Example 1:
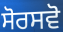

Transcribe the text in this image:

ਸੋਰਸਵੋ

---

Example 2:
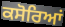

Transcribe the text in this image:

ਕਸੋਰਿਆਂ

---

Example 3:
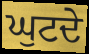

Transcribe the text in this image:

ਘੁਟਦੇ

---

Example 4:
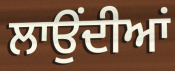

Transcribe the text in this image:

ਲਾਉੰਦੀਆਂ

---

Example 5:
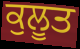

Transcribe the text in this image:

ਕੁਲੂਤ